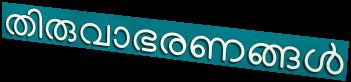
തിരുവാഭരണങ്ങൾ